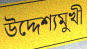
উদ্দেশ্যমুখী